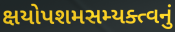
ક્ષયોપશમસમ્યક્ત્વનું